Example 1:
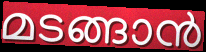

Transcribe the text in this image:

മടങ്ങാൻ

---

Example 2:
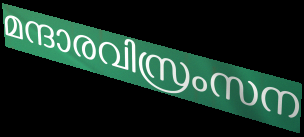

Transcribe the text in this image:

മന്ദാരവിസ്രംസന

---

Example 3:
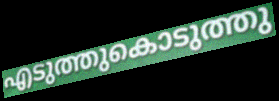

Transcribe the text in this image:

എടുത്തുകൊടുത്തു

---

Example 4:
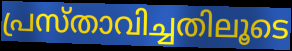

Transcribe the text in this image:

പ്രസ്താവിച്ചതിലൂടെ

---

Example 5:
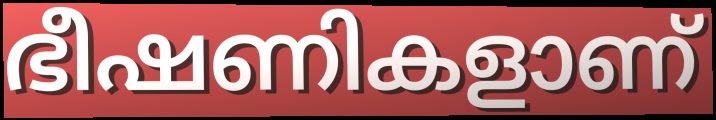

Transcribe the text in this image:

ഭീഷണികളാണ്